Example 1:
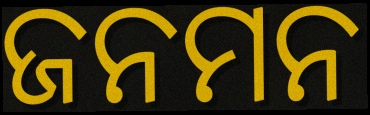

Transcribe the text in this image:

ଜନମନ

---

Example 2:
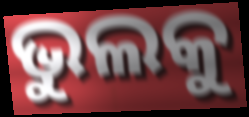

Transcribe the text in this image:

ଭୁଲକୁ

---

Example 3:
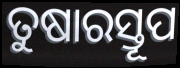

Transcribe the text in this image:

ତୁଷାରସ୍ତୂପ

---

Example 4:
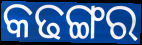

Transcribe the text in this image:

କଢଙ୍ଗର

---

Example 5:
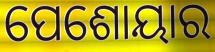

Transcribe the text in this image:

ପେଶୋୟାର